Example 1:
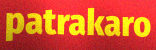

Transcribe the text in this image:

patrakaro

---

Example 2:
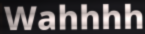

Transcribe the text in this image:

Wahhhh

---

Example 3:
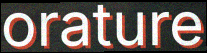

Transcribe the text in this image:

orature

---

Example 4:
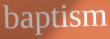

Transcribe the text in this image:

baptism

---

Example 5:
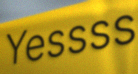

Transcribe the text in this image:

Yessss